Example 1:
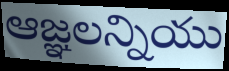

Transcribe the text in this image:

ఆజ్ఞలన్నియు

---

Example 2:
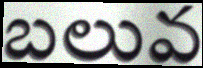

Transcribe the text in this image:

బలువ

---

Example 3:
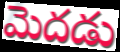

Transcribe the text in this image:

మెదడు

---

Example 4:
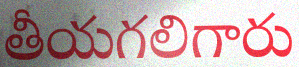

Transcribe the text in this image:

తీయగలిగారు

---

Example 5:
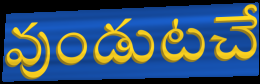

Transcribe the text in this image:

వుండుటచే